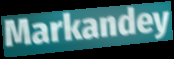
Markandey